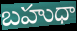
బహుధా